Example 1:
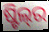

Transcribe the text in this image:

ଷ୍ଟିଲ୍‌ର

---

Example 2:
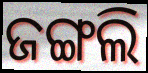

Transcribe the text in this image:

ଜଙ୍ଗଲି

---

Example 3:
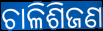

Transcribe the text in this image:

ଚାଳିଶିଜଣ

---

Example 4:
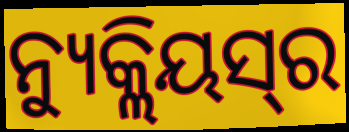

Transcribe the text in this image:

ନ୍ୟୁକ୍ଲିୟସ୍‌ର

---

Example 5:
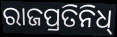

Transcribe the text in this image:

ରାଜପ୍ରତିନିଧ୍